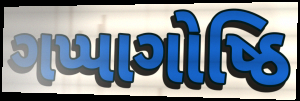
ગપ્પાગોષ્ઠિ